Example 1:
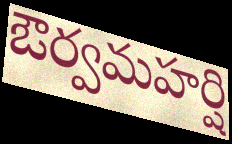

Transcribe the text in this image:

ఔర్వమహర్షి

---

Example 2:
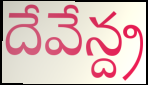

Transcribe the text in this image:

దేవేన్ద్ర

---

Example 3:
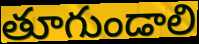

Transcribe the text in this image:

తూగుండాలి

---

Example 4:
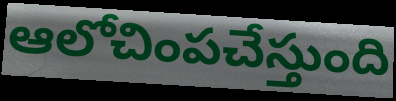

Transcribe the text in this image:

ఆలోచింపచేస్తుంది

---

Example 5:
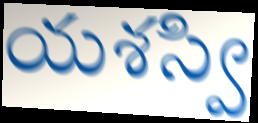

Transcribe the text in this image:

యశస్వి